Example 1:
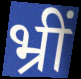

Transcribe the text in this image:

भ्रीं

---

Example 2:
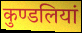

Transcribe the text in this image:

कुण्डलियां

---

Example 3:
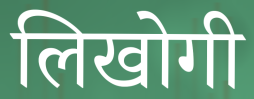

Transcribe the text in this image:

लिखोगी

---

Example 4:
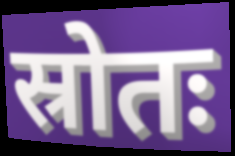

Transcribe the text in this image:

स्रोतः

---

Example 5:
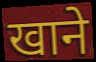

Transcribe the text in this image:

खाने